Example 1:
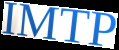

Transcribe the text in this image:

IMTP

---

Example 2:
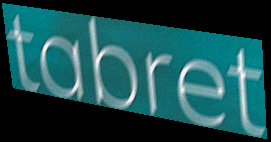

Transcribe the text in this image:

tabret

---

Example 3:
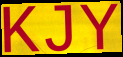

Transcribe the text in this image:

KJY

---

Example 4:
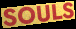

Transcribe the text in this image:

SOULS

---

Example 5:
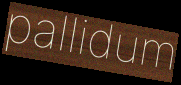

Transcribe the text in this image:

pallidum